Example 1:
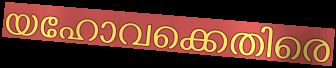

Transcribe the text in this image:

യഹോവക്കെതിരെ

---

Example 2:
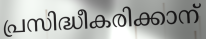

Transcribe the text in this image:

പ്രസിദ്ധീകരിക്കാന്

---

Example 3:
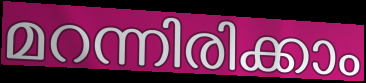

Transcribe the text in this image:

മറന്നിരിക്കാം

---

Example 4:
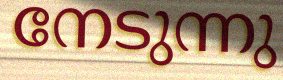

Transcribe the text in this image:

നേടുന്നു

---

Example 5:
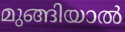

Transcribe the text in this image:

മുങ്ങിയാൽ